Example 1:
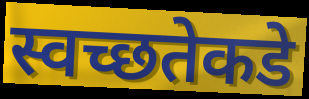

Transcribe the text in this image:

स्वच्छतेकडे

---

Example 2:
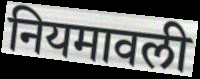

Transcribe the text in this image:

नियमावली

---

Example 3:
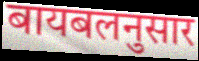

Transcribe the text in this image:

बायबलनुसार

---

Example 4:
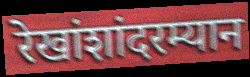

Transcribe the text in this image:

रेखांशांदरम्यान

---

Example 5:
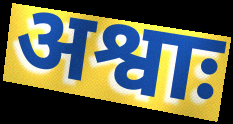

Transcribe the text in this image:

अश्वाः